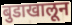
बुडाखालून